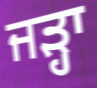
ਜੜ੍ਹਾ